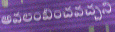
అవలంబించవచ్చని